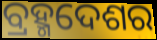
ବ୍ରହ୍ମଦେଶର